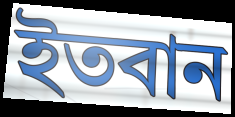
ইতবান